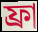
ফ্রা